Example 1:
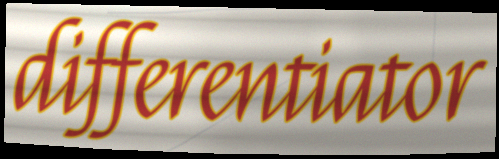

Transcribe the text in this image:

differentiator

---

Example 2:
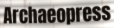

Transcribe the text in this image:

Archaeopress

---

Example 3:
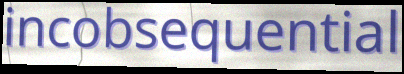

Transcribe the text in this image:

incobsequential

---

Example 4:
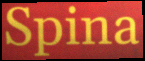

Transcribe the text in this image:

Spina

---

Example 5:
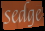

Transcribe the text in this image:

sedge